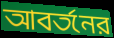
আবর্তনের